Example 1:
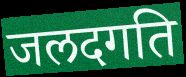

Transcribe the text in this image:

जलदगति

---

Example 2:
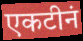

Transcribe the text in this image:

एकटीनं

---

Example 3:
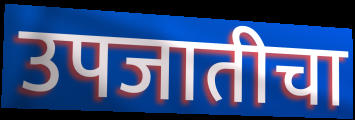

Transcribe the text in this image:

उपजातीचा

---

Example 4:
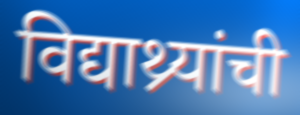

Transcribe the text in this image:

विद्याथ्र्यांची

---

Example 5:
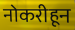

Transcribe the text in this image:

नोकरीहून